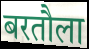
बरतौला